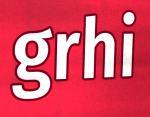
grhi